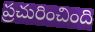
ప్రచురించింది